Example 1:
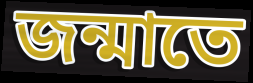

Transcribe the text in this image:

জন্মাতে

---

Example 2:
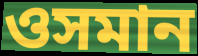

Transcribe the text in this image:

ওসমান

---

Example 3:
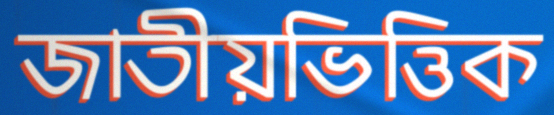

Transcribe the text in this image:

জাতীয়ভিত্তিক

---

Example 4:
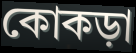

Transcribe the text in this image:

কোকড়া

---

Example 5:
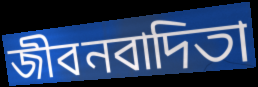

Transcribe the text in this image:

জীবনবাদিতা